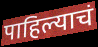
पाहिल्याचं